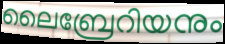
ലൈബ്രേറിയനും